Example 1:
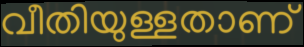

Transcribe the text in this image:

വീതിയുള്ളതാണ്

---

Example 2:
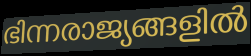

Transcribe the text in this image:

ഭിന്നരാജ്യങ്ങളിൽ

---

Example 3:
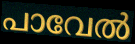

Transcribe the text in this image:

പാവേൽ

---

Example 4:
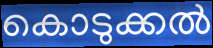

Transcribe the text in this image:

കൊടുക്കൽ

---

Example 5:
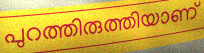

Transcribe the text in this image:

പുറത്തിരുത്തിയാണ്